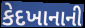
કેદખાનાની